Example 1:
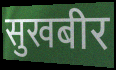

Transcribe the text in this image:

सुखबीर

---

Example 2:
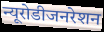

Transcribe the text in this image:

न्यूरोडीजनरेशन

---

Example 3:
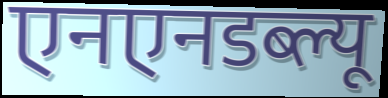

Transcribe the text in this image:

एनएनडब्ल्यू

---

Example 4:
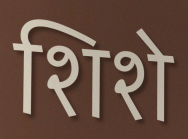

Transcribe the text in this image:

शिशे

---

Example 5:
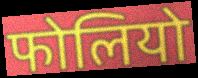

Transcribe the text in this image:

फोलियो